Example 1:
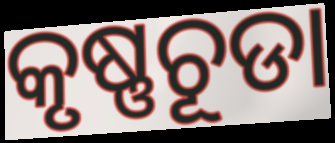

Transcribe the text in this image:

କୃଷ୍ଣଚୂଡା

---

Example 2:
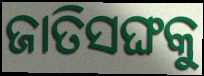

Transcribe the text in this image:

ଜାତିସଙ୍ଘକୁ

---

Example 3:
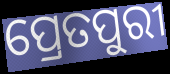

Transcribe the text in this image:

ପ୍ରେତପୁରୀ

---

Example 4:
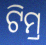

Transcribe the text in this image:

ଟିମ୍ର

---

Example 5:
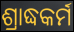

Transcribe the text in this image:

ଶ୍ରାଦ୍ଧକର୍ମ